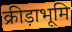
क्रीड़ाभूमि